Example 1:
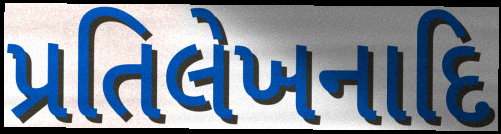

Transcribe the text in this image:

પ્રતિલેખનાદિ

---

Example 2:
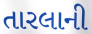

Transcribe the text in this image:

તારલાની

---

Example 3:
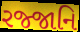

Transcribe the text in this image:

રજ્જાનિ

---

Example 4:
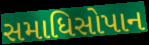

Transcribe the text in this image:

સમાધિસોપાન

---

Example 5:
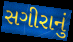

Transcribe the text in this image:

સગીરાનું